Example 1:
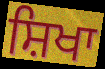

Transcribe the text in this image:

ਸ਼ਿਖਾ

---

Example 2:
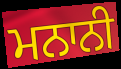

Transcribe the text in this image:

ਮਨਾਨੀ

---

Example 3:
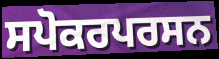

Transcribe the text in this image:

ਸਪੋਕਰਪਰਸਨ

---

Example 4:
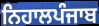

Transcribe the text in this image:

ਨਿਹਾਲਪੰਜਾਬ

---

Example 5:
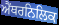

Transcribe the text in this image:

ਐਂਥਰਨਿਲਿਕ